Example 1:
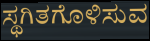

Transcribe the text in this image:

ಸ್ಥಗಿತಗೊಳಿಸುವ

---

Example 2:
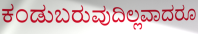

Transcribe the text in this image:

ಕಂಡುಬರುವುದಿಲ್ಲವಾದರೂ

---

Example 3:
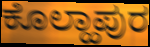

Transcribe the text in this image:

ಕೊಲ್ಹಾಪುರ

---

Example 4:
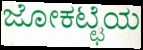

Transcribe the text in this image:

ಜೋಕಟ್ಟೆಯ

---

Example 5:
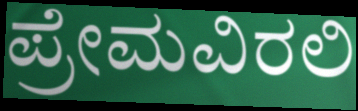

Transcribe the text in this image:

ಪ್ರೇಮವಿರಲಿ